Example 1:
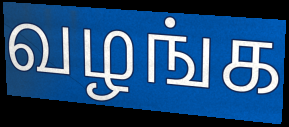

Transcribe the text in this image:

வழங்க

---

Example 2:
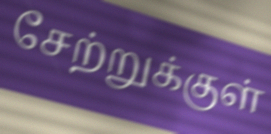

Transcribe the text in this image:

சேற்றுக்குள்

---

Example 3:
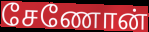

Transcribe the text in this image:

சேணோன்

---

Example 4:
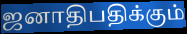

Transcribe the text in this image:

ஜனாதிபதிக்கும்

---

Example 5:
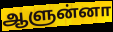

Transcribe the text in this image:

ஆளுன்னா